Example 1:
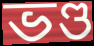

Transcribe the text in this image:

ভণ্ড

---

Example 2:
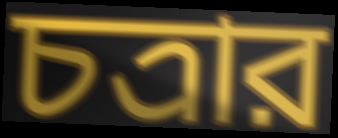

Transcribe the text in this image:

চত্রার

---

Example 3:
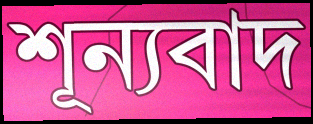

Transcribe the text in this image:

শূন্যবাদ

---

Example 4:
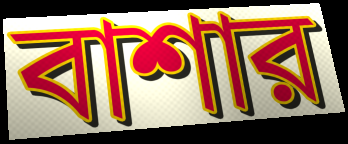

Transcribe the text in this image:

বাশার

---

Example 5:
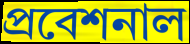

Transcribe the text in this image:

প্রবেশনাল